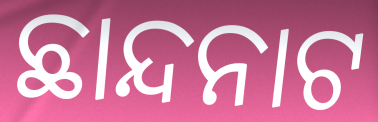
ଛାନ୍ଦନାଟ